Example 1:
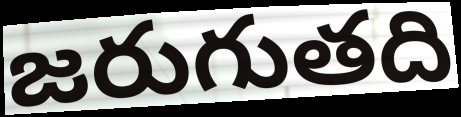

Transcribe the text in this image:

జరుగుతది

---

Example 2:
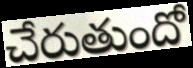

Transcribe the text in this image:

చేరుతుందో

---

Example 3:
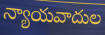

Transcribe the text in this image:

న్యాయవాదుల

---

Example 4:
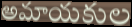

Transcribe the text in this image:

అమాయకుల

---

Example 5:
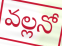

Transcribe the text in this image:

వల్లనో